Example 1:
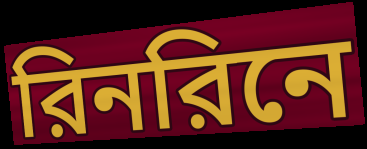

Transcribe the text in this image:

রিনরিনে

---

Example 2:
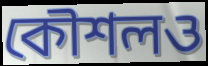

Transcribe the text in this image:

কৌশলও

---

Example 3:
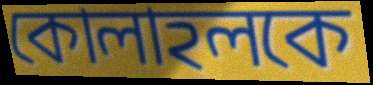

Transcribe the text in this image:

কোলাহলকে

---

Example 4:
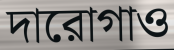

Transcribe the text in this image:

দারোগাও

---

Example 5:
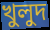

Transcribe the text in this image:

খুলুদ